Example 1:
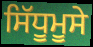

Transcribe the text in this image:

ਸਿੱਧੂਮੂਸੇ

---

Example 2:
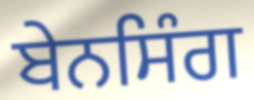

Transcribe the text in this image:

ਬੇਨਸਿੰਗ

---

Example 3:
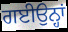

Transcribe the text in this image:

ਗਈਉਨ੍ਹਾਂ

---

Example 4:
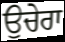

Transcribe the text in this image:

ਉਚੇਰਾ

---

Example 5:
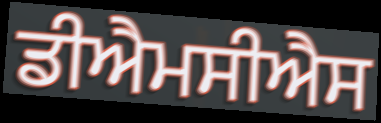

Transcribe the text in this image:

ਡੀਐਮਸੀਐਸ